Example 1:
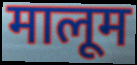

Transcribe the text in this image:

मालूम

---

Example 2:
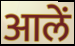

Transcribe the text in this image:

आलें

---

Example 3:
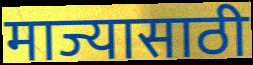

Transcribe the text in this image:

माज्यासाठी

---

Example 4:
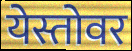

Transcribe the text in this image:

येस्तोवर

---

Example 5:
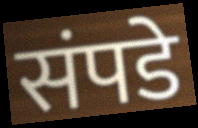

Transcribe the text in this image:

संपडे